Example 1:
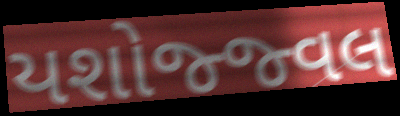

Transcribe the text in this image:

યશોજ્જ્વલ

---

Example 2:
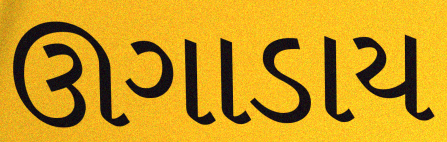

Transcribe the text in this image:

ઊગાડાય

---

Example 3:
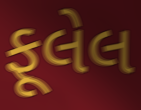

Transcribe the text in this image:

ફૂલેલ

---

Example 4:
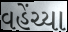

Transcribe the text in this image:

વહેંચ્યા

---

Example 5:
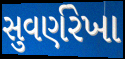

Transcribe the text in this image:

સુવર્ણરેખા